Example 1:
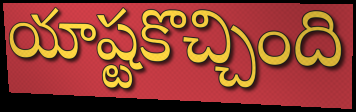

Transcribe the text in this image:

యాష్టకొచ్చింది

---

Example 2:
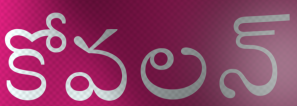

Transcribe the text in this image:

కోవలన్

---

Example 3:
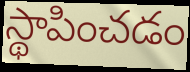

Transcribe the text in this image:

స్థాపించడం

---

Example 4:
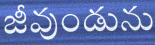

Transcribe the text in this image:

జీవుండును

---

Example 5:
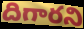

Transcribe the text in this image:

దిగారని